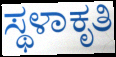
ಸ್ಥಳಾಕೃತಿ